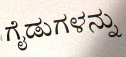
ಗೈಡುಗಳನ್ನು